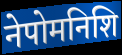
नेपोमनिशि